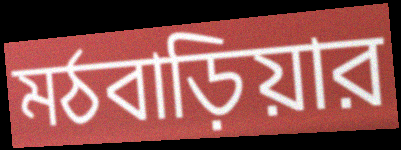
মঠবাড়িয়ার